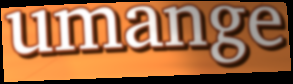
umange